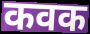
कवक